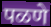
पळणे